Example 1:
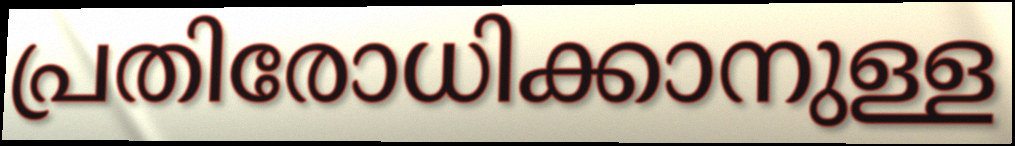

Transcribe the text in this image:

പ്രതിരോധിക്കാനുള്ള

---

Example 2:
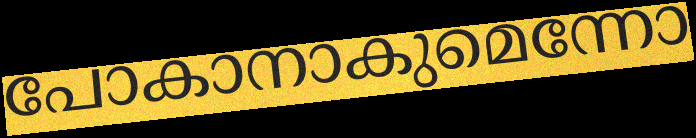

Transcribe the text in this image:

പോകാനാകുമെന്നോ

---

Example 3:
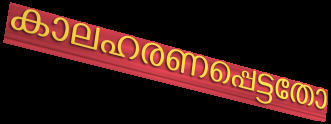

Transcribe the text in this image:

കാലഹരണപ്പെട്ടതോ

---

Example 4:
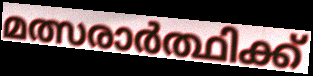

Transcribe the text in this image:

മത്സരാർത്ഥിക്ക്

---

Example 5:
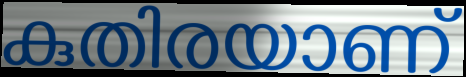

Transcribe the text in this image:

കുതിരയാണ്